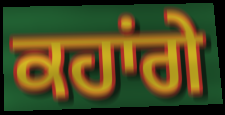
ਕਹਾਂਗੇ